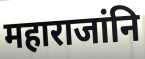
महाराजांनि